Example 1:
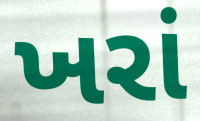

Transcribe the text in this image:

ખરાં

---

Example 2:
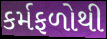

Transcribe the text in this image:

કર્મફળોથી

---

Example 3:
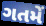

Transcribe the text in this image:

ગતમેં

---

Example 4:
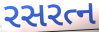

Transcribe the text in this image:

રસરત્ન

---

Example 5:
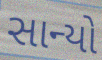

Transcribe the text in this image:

સાન્યો